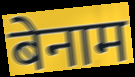
बेनाम